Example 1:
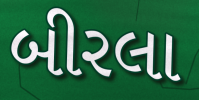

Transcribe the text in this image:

બીરલા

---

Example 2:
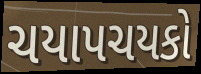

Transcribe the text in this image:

ચયાપચયકો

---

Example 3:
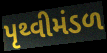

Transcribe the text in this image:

પૃથ્વીમંડળ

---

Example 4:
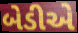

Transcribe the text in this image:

બેડીએ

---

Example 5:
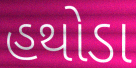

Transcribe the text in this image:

હથોડા